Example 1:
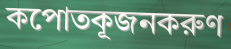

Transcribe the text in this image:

কপোতকূজনকরুণ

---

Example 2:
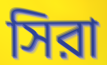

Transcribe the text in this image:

সিরা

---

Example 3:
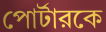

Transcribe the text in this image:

পোর্টারকে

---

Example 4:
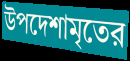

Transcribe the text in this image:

উপদেশামৃতের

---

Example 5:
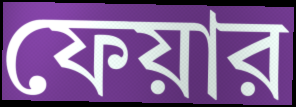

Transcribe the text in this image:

ফেয়ার